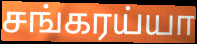
சங்கரய்யா